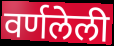
वर्णलेली